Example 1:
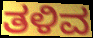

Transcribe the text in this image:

ತಳಿವ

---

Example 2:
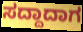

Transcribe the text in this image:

ಸದ್ದಾದಾಗ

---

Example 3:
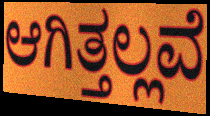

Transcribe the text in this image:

ಆಗಿತ್ತಲ್ಲವೆ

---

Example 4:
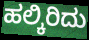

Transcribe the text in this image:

ಹಲ್ಕಿರಿದು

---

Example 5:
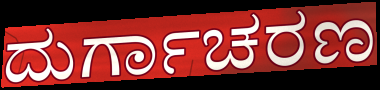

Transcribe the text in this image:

ದುರ್ಗಾಚರಣ